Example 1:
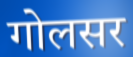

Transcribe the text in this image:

गोलसर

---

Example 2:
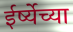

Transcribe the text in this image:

ईर्ष्येच्या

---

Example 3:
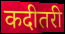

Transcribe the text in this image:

कदीतरी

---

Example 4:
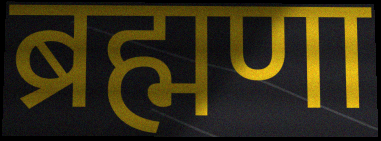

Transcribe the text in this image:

ब्रह्मणा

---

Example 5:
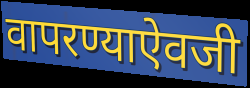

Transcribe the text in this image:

वापरण्याऐवजी